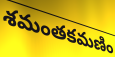
శమంతకమణిం